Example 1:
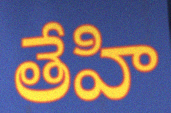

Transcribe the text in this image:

తేహి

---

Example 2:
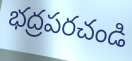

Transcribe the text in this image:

భద్రపరచండి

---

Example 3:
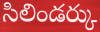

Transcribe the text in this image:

సిలిండర్కు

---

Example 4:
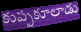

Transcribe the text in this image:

కుప్పకూలాడు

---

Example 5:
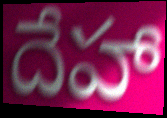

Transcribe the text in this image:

దేహా